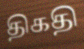
திகதி